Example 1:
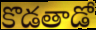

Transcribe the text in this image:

కొడతాడో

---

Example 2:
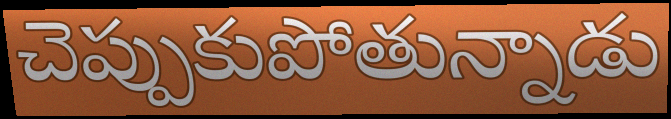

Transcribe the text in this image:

చెప్పుకుపోతున్నాడు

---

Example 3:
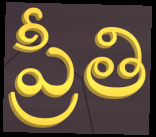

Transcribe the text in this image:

ప్రీతి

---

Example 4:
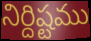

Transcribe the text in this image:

నిర్దిష్టము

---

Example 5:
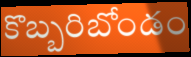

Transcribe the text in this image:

కొబ్బరిబోండం